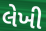
લેખી